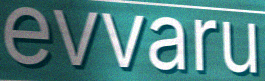
evvaru